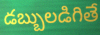
డబ్బులడిగితే